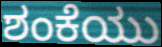
ಶಂಕೆಯು